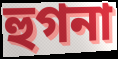
হুগনা